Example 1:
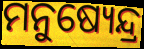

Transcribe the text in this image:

ମନୁଷ୍ୟେନ୍ଦ୍ର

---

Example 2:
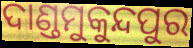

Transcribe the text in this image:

ଦାଣ୍ଡମୁକୁନ୍ଦପୁର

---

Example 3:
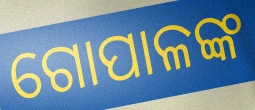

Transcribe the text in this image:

ଗୋପାଳଙ୍କ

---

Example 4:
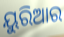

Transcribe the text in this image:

ୟୁରିଆର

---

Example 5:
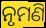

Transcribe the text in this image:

ନୃମଣି